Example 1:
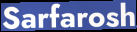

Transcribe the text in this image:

Sarfarosh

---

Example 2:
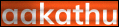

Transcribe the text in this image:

aakathu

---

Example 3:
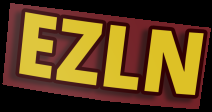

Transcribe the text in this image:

EZLN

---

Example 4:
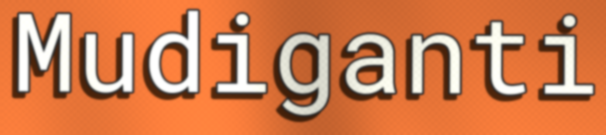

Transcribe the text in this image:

Mudiganti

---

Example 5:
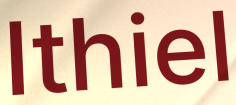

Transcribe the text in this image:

Ithiel